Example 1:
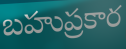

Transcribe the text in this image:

బహుప్రకార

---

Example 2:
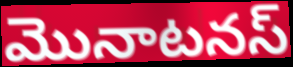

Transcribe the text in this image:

మొనాటనస్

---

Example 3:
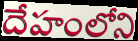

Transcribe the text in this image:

దేహంలోని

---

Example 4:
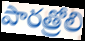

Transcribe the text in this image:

పారత్రోలి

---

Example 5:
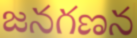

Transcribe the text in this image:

జనగణన